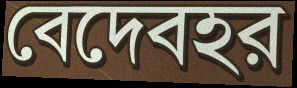
বেদেবহর